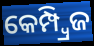
କେମ୍ପ୍ୱ୍ରିଜ